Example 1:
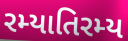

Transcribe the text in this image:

રમ્યાતિરમ્ય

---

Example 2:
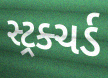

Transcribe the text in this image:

સ્ટ્રક્ચર્ડ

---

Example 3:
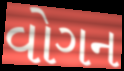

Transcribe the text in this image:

વોગન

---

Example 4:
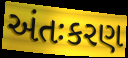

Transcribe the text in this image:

અંતઃકરણ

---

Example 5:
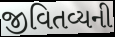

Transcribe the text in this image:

જીવિતવ્યની